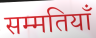
सम्मतियाँ